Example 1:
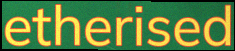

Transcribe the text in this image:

etherised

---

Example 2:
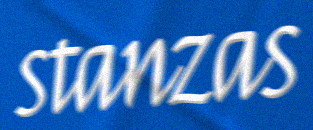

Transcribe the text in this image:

stanzas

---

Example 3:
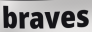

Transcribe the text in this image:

braves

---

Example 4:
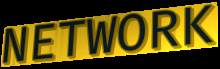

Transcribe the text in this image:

NETWORK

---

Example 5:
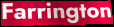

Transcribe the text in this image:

Farrington